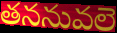
తననువలె